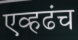
एव्हढंच